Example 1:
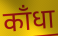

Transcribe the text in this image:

काँधा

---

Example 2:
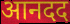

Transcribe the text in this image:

आनदद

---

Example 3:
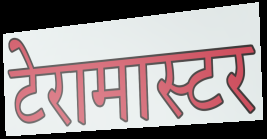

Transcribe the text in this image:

टेरामास्टर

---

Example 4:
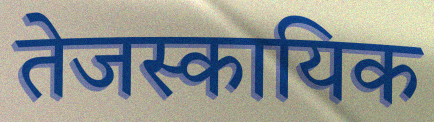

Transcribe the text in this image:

तेजस्कायिक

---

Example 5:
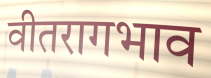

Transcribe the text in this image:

वीतरागभाव